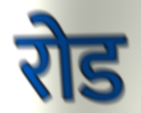
रोड